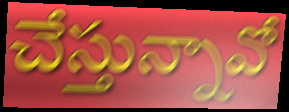
చేస్తున్నావో